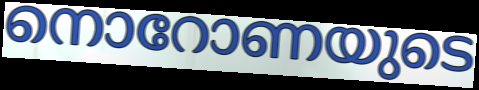
നൊറോണയുടെ